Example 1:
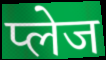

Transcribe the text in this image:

प्‍लेज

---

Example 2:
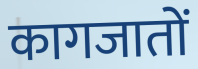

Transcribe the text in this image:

कागजातों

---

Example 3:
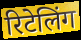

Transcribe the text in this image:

रिटेलिंग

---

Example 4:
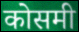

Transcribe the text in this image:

कोसमी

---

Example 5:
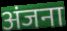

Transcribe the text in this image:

अंजना